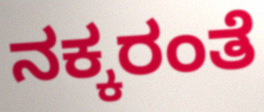
ನಕ್ಕರಂತೆ